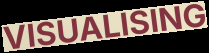
VISUALISING